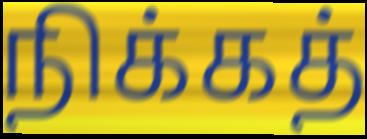
நிக்கத்